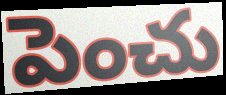
పెంచు